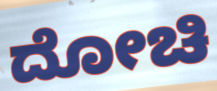
ದೋಚಿ